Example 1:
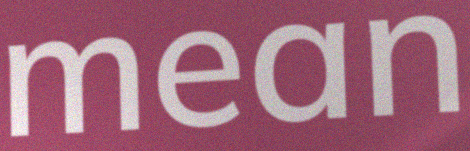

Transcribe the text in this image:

mean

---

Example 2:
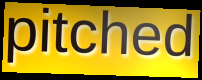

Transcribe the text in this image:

pitched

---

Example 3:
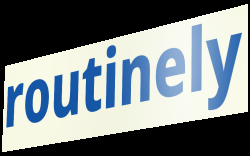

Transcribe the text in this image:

routinely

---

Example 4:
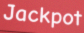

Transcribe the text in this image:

Jackpot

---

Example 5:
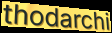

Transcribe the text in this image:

thodarchi